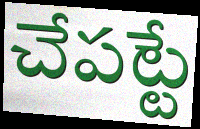
చేపట్టే